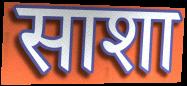
साशा